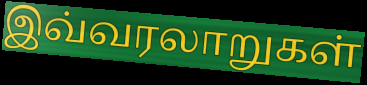
இவ்வரலாறுகள்